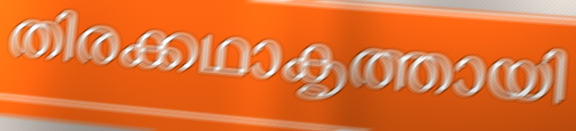
തിരക്കഥാകൃത്തായി